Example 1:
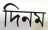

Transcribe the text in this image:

দিনম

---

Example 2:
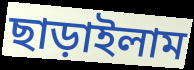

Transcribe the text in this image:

ছাড়াইলাম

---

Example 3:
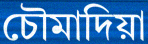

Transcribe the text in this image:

চৌমাদিয়া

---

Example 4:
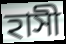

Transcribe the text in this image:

হাসী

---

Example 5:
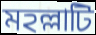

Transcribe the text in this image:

মহল্লাটি